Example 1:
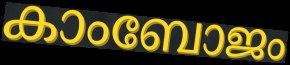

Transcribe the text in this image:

കാംബോജം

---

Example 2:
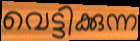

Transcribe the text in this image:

വെട്ടിക്കുന്ന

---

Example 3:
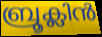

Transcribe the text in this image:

ബ്രൂക്ലിൻ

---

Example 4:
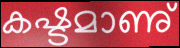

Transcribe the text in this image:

കഷ്ടമാണു്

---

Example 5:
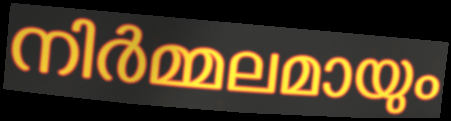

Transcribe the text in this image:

നിർമ്മലമായും